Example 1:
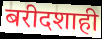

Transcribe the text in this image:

बरीदशाही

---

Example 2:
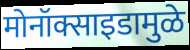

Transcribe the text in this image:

मोनॉक्साइडामुळे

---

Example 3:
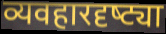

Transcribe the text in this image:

व्यवहारदृष्ट्या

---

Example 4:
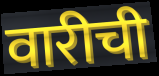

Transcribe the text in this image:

वारीची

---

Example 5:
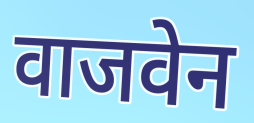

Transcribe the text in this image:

वाजवेन